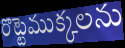
రొట్టెముక్కలను